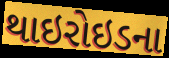
થાઇરોઇડના